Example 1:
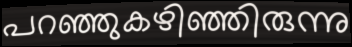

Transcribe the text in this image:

പറഞ്ഞുകഴിഞ്ഞിരുന്നു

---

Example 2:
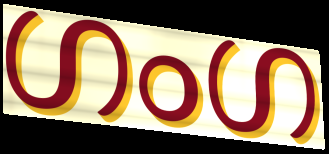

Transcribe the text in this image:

ഗംഗ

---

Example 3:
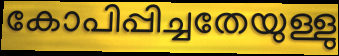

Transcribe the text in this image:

കോപിപ്പിച്ചതേയുള്ളു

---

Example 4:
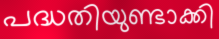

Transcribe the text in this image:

പദ്ധതിയുണ്ടാക്കി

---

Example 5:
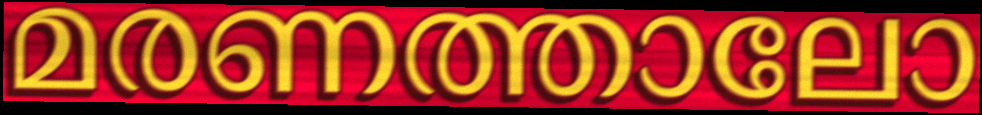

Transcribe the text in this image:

മരണത്താലോ